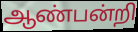
ஆண்பன்றி